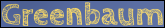
Greenbaum